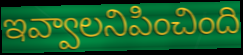
ఇవ్వాలనిపించింది